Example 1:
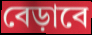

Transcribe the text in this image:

বেড়াবে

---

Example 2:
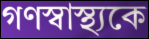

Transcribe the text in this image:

গণস্বাস্থ্যকে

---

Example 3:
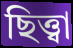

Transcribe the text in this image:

ছিত্ত্বা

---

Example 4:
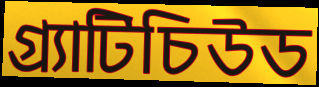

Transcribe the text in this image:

গ্র্যাটিচিউড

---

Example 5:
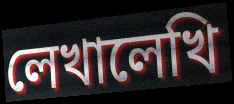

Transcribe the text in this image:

লেখালেখি